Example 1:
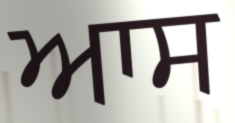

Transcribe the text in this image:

ਆਸ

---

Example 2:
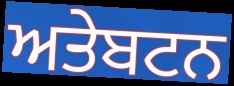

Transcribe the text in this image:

ਅਤੇਬਟਨ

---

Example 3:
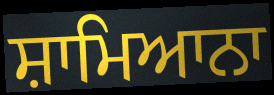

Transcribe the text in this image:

ਸ਼ਾਮਿਆਨਾ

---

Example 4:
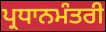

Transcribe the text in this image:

ਪ੍ਰਧਾਨਮੰਤਰੀ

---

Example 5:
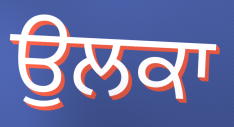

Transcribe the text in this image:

ਉਲਕਾ